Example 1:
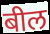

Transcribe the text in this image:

बील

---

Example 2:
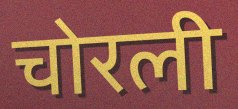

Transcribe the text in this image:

चोरली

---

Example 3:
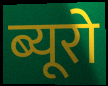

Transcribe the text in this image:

ब्यूरो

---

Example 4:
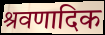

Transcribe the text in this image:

श्रवणादिक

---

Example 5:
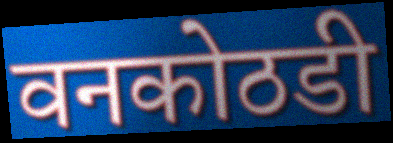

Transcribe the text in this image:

वनकोठडी